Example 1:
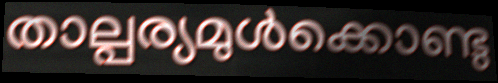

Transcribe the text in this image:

താല്പര്യമുൾക്കൊണ്ടു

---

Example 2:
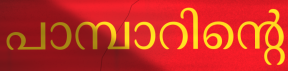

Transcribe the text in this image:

പാമ്പാറിന്റെ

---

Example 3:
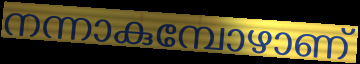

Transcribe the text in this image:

നന്നാകുമ്പോഴാണ്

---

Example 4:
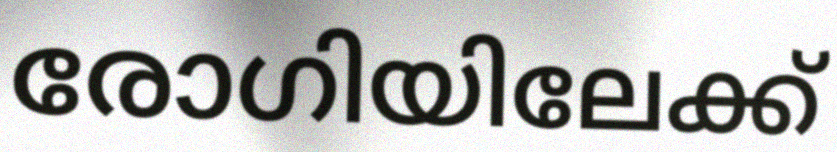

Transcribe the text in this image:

രോഗിയിലേക്ക്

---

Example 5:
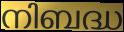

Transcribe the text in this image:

നിബദ്ധ